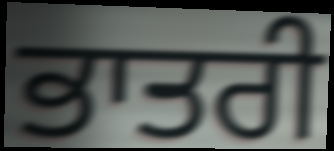
ਭਾਤਰੀ